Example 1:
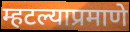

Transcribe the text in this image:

म्हटल्याप्रमाणे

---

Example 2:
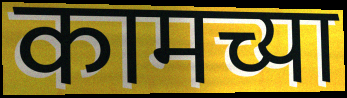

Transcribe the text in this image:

कामच्या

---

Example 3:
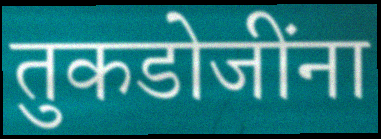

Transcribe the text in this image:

तुकडोजींना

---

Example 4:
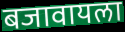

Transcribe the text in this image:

बजावायला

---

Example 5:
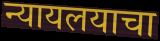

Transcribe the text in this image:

न्यायलयाचा